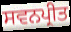
ਸਵਨਪ੍ਰੀਤ